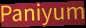
Paniyum